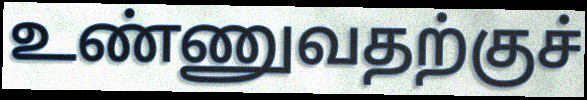
உண்ணுவதற்குச்